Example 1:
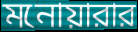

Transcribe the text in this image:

মনোয়ারার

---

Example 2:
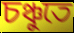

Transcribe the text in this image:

চঞ্চুতে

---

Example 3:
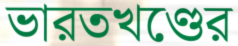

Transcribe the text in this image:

ভারতখণ্ডের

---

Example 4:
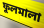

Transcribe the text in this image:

ফুলমালা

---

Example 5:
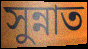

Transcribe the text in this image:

সুন্নাত